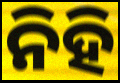
ନିହି